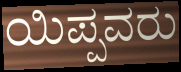
ಯಿಪ್ಪವರು